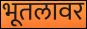
भूतलावर